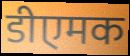
डीएमक